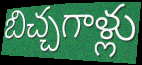
బిచ్చగాళ్లు